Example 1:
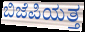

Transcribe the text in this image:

ಬಿಜೆಪಿಯತ್ತ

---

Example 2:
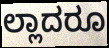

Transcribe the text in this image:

ಲ್ಲಾದರೂ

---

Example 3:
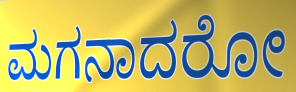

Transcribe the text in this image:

ಮಗನಾದರೋ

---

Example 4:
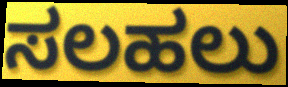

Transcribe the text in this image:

ಸಲಹಲು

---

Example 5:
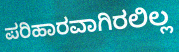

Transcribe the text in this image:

ಪರಿಹಾರವಾಗಿರಲಿಲ್ಲ